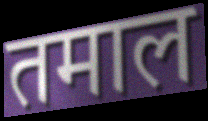
तमाल